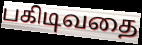
பகிடிவதை